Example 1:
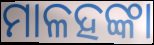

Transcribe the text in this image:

ମାଳହଙ୍କା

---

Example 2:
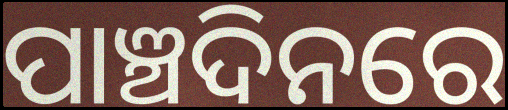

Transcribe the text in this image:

ପାଞ୍ଚଦିନରେ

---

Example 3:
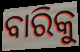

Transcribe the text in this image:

ବାରିକୁ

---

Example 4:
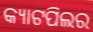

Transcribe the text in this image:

କ୍ୟାଟପିଲର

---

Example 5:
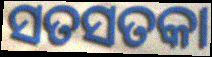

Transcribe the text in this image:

ସତସତକା